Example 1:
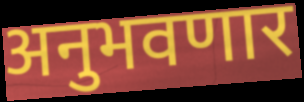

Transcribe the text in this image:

अनुभवणार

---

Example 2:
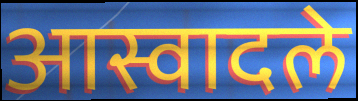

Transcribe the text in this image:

आस्वादले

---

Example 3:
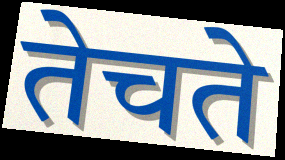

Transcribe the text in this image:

तेचते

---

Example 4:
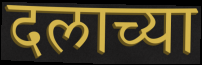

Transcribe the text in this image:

दलाच्या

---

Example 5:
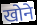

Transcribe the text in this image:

खोने